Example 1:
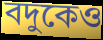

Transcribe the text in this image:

বদুকেও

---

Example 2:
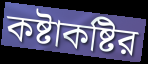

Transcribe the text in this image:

কষ্টাকষ্টির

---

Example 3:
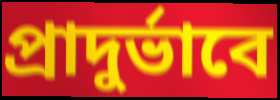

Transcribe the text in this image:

প্রাদুর্ভাবে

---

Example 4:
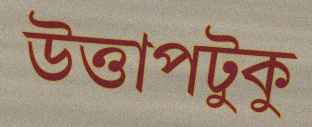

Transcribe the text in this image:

উত্তাপটুকু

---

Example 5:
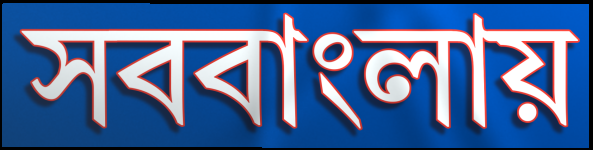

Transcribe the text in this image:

সববাংলায়